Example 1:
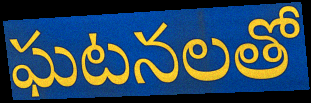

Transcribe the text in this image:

ఘటనలతో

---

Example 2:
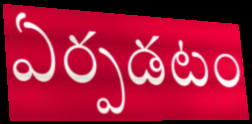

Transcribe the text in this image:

ఏర్పడటం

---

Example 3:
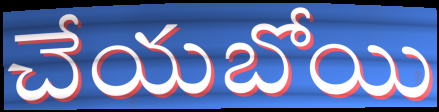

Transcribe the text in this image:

చేయబోయి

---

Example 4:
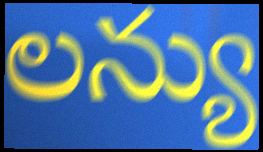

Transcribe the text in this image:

లన్యు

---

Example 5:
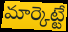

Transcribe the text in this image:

మార్కెట్టే